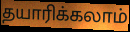
தயாரிக்கலாம்